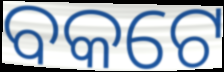
ବକଟେ